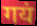
गयं